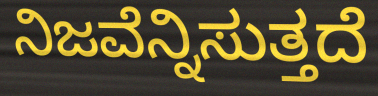
ನಿಜವೆನ್ನಿಸುತ್ತದೆ